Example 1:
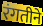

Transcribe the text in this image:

रंगतीने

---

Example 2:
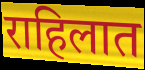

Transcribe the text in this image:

राहिलात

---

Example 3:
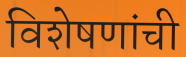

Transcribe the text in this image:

विशेषणांची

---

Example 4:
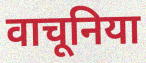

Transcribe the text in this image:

वाचूनिया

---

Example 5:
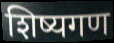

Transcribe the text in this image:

शिष्यगण